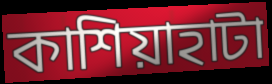
কাশিয়াহাটা